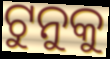
ଟୁନୁକୁ